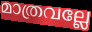
മാത്രവല്ലേ